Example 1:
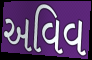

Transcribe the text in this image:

અવિવ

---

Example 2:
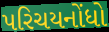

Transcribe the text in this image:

પરિચયનોંધો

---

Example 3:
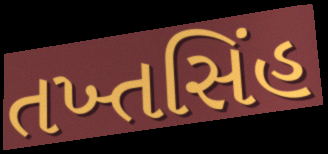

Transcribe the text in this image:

તખ્તસિંહ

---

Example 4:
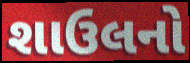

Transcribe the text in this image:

શાઉલનો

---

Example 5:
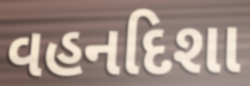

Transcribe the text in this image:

વહનદિશા